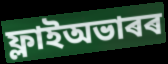
ফ্লাইঅভাৰৰ